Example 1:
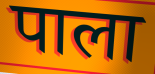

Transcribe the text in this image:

पाला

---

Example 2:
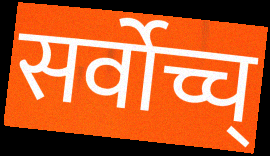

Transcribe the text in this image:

सर्वोच्च्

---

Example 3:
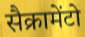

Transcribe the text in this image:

सैक्रामेंटो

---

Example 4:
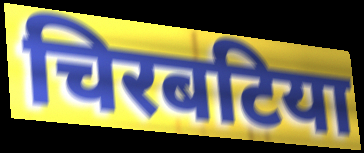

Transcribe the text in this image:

चिरबटिया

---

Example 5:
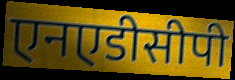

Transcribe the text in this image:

एनएडीसीपी